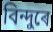
বিন্দুৰে